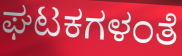
ಘಟಕಗಳಂತೆ